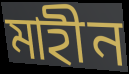
মাহীন